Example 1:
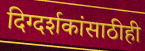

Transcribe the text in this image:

दिग्दर्शकांसाठीही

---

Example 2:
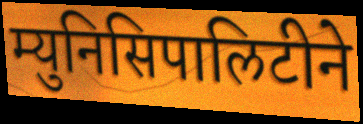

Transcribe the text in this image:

म्युनिसिपालिटीने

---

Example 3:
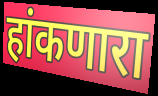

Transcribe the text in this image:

हांकणारा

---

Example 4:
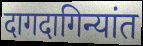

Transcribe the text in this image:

दागदागिन्यांत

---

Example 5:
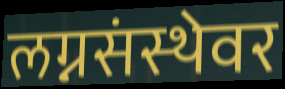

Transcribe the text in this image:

लग्नसंस्थेवर